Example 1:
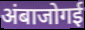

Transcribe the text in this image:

अंबाजोगई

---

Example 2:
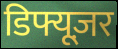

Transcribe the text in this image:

डिफ्यूज़र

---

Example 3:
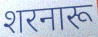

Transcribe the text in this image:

शरनारू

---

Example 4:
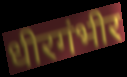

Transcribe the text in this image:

धीरगंभीर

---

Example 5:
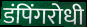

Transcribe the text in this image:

डंपिंगरोधी